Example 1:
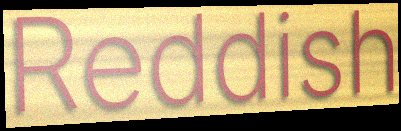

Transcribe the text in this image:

Reddish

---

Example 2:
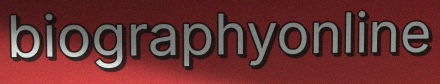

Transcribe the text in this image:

biographyonline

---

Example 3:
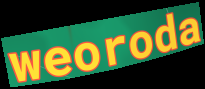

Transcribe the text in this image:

weoroda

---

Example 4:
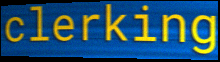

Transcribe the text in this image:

clerking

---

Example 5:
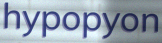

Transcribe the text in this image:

hypopyon